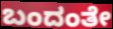
ಬಂದಂತೇ